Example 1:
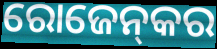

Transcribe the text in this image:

ରୋଜେନ୍‌କର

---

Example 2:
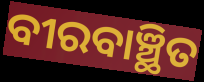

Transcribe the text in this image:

ବୀରବାଞ୍ଛିତ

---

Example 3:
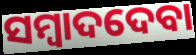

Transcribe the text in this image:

ସମ୍ବାଦଦେବା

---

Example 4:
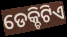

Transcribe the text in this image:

ଡେକ୍ଚିଟିଏ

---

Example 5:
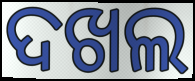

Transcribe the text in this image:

ଦଖଲ